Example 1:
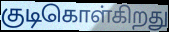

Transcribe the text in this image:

குடிகொள்கிறது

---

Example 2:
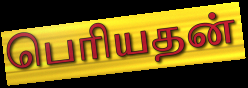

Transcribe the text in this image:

பெரியதன்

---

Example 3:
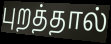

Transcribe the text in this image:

புறத்தால்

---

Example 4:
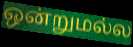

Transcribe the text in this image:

ஒன்றுமல்ல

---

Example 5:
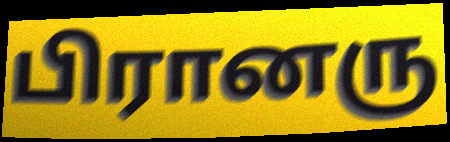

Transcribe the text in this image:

பிரானரு